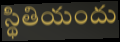
స్థితియందు